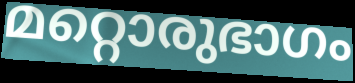
മറ്റൊരുഭാഗം